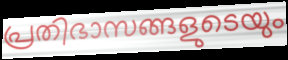
പ്രതിഭാസങ്ങളുടെയും